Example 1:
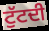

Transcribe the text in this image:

ਟੁੱਟਦੀ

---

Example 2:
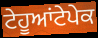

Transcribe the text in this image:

ਟੇਹੂਆਂਟੇਪੇਕ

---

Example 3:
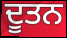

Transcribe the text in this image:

ਦੂਤਨ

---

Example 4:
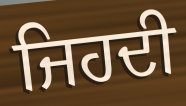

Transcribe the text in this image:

ਜਿਹਦੀ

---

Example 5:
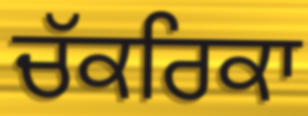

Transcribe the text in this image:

ਚੱਕਰਿਕਾ